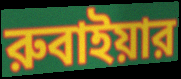
রুবাইয়ার